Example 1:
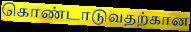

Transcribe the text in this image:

கொண்டாடுவதற்கான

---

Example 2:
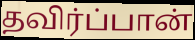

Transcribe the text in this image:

தவிர்ப்பான்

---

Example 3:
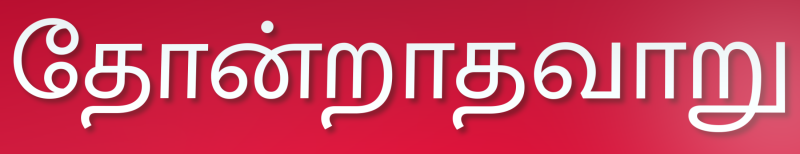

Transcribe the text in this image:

தோன்றாதவாறு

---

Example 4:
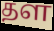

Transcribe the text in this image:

தள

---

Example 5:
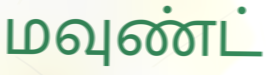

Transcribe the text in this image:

மவுண்ட்